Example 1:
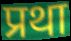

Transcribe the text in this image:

प्रथा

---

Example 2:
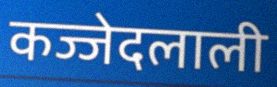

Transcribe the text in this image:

कज्जेदलाली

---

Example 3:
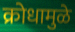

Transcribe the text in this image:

क्रोधामुळे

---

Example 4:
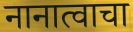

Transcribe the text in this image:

नानात्वाचा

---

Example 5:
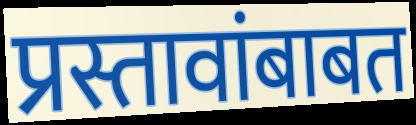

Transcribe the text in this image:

प्रस्तावांबाबत